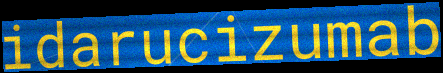
idarucizumab